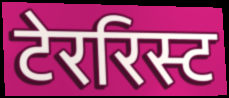
टेररिस्ट